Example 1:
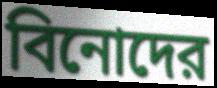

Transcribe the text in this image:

বিনোদের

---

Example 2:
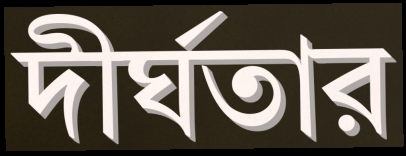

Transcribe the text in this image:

দীর্ঘতার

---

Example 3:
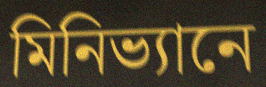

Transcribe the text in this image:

মিনিভ্যানে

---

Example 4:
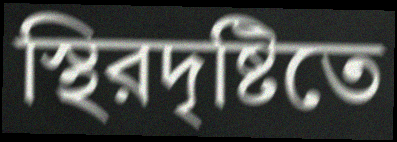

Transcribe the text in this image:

স্থিরদৃষ্টিতে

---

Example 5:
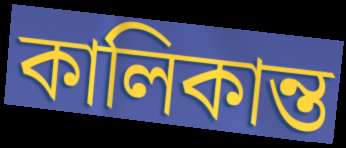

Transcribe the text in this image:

কালিকান্ত